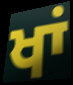
ਖਾਂ